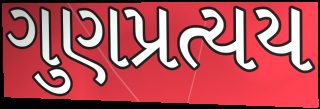
ગુણપ્રત્યય